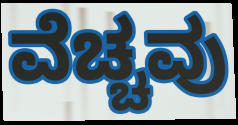
ವೆಚ್ಚವು